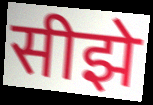
सीझे